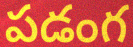
పడంగ